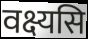
वक्ष्यसि